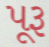
પૂરૂ